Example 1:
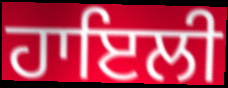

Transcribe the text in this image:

ਹਾਇਲੀ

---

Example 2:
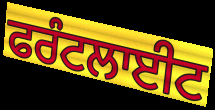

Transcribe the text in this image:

ਫਰੰਟਲਾਈਟ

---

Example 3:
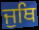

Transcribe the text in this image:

ਜੁਥਿ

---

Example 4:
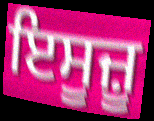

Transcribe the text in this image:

ਇਸੂਜ਼ੂ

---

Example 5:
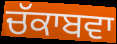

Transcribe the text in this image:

ਚੱਕਾਬਵਾ